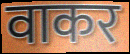
वाकर